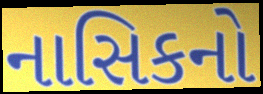
નાસિકનો